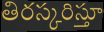
తిరస్కరిస్తూ